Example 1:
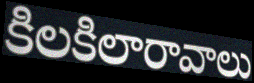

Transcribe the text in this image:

కిలకిలారావాలు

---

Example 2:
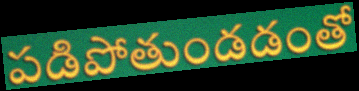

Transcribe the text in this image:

పడిపోతుండడంతో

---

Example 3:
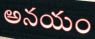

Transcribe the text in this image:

అనయం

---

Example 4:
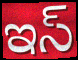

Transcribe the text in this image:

ఇస్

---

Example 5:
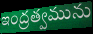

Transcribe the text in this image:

ఇంద్రత్వమును